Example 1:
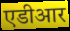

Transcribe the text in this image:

एडीआर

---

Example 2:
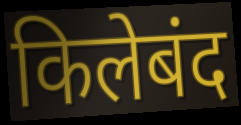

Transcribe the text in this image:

किलेबंद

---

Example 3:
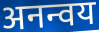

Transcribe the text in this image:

अनन्वय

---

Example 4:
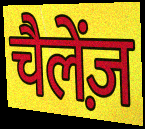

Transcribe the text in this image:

चैलेंज़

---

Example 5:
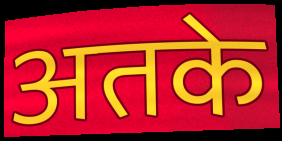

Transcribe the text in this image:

अतके